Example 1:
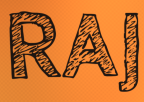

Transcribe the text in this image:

RAJ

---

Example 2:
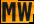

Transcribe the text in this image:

MW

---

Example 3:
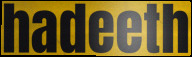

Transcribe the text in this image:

hadeeth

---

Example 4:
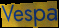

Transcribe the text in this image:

Vespa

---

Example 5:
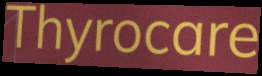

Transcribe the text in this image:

Thyrocare